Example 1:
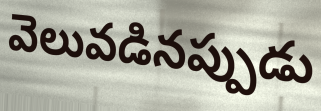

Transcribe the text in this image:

వెలువడినప్పుడు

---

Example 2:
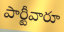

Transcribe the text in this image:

పార్టీవారూ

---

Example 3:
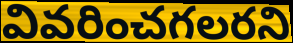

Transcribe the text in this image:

వివరించగలరని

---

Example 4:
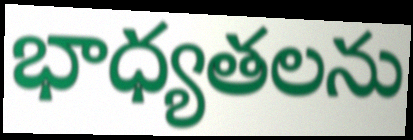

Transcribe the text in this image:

భాధ్యతలను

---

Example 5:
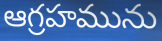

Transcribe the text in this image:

ఆగ్రహమును